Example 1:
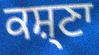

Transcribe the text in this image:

ਕਸ਼੍ਣਾ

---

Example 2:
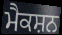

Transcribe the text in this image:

ਮੈਕਸ਼ਨ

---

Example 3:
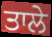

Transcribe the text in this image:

ਤਾਲੇ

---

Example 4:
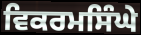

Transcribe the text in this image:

ਵਿਕਰਮਸਿੰਘੇ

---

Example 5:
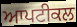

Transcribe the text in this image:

ਆਪਟੀਕਲ